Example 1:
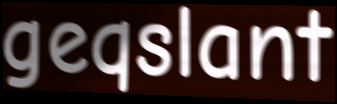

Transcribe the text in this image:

geqslant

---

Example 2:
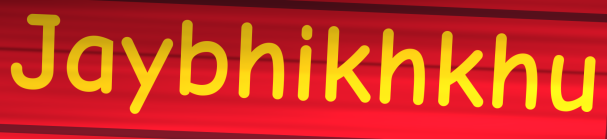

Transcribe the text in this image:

Jaybhikhkhu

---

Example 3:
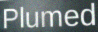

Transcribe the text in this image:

Plumed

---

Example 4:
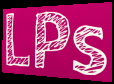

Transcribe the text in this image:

LPs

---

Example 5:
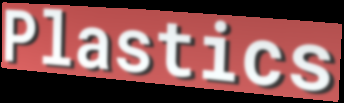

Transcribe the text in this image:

Plastics